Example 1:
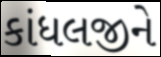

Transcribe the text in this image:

કાંધલજીને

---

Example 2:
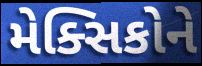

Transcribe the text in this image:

મેક્સિકોને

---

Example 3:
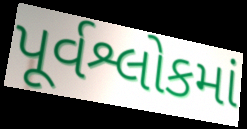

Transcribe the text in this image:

પૂર્વશ્લોકમાં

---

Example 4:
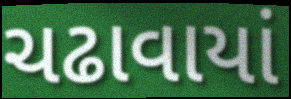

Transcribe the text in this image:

ચઢાવાયાં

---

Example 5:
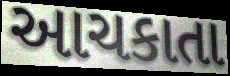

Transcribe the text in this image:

આચકાતા